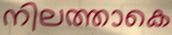
നിലത്താകെ